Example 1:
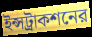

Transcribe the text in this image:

ইন্সট্রাকশনের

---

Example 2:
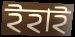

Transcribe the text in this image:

ইহাই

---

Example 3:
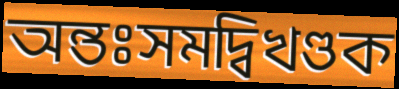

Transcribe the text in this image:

অন্তঃসমদ্বিখণ্ডক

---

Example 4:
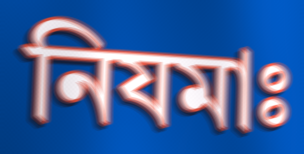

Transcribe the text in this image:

নিযমাঃ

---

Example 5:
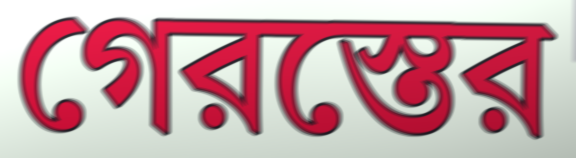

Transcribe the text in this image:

গেরস্তের